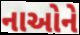
નાઓને